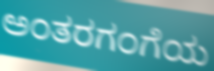
ಅಂತರಗಂಗೆಯ